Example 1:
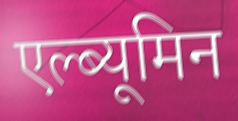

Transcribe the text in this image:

एल्ब्यूमिन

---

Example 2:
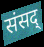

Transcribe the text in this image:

संसद्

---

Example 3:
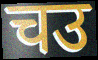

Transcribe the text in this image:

चउ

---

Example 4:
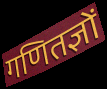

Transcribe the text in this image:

गणितज्ञों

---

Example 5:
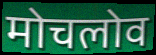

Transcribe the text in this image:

मोचलोव